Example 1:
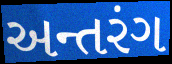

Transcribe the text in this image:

અન્તરંગ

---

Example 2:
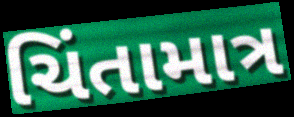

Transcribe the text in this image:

ચિંતામાત્ર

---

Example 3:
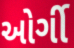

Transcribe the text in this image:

ઓર્ગી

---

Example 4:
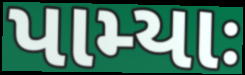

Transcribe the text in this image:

પામ્યાઃ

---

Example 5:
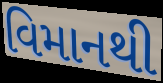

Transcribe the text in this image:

વિમાનથી